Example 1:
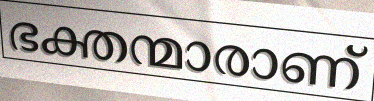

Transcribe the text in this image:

ഭക്തന്മാരാണ്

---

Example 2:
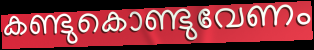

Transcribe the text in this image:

കണ്ടുകൊണ്ടുവേണം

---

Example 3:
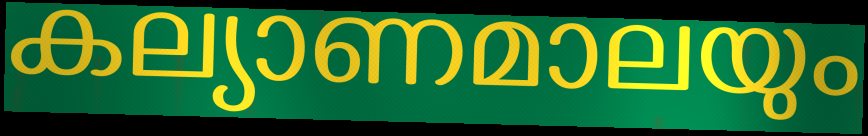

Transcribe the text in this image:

കല്യാണമാലയും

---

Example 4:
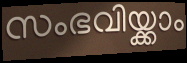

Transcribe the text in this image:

സംഭവിയ്ക്കാം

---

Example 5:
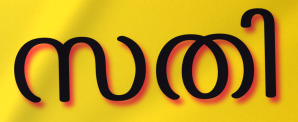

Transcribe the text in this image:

സതി